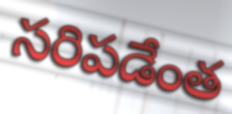
సరిపడేంత